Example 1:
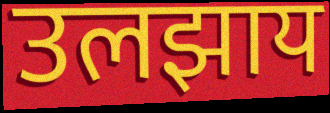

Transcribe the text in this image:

उलझाय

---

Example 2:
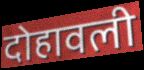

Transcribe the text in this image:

दोहावली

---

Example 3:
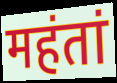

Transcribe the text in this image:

महंतां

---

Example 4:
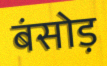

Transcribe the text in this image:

बंसोड़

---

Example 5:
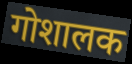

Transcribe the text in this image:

गोशालक